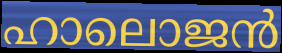
ഹാലൊജൻ